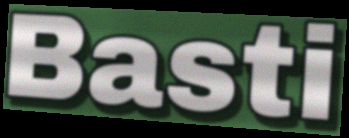
Basti